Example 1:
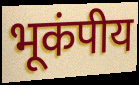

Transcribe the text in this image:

भूकंपीय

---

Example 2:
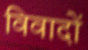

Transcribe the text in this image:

विवादों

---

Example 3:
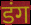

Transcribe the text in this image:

डंग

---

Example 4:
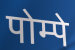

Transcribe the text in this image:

पोम्पे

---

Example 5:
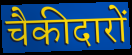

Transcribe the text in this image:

चैकीदारों